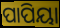
ପାପିୟା